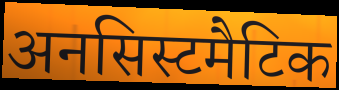
अनसिस्टमैटिक